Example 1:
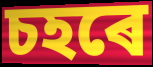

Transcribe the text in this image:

চহৰে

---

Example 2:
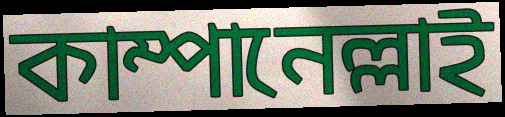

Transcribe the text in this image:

কাম্পানেল্লাই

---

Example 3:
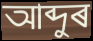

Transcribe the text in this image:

আব্দুৰ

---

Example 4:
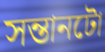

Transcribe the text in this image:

সন্তানটো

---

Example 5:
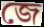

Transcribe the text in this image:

জে